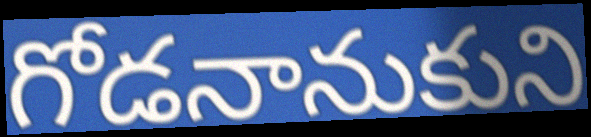
గోడనానుకుని